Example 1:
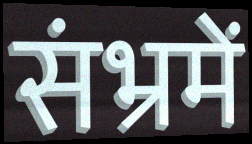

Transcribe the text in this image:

संभ्रमें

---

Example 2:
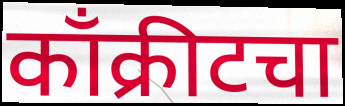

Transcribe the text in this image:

काँक्रीटचा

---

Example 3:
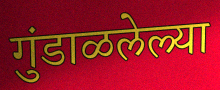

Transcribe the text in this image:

गुंडाळलेल्या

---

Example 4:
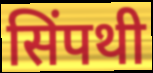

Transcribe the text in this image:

सिंपथी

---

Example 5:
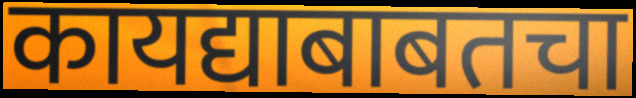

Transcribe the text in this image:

कायद्याबाबतचा